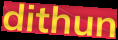
dithun